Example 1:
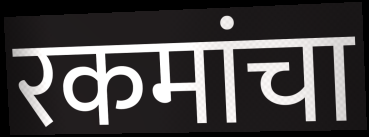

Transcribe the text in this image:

रकमांचा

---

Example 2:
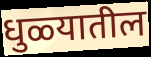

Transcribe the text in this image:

धुळ्यातील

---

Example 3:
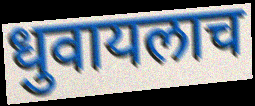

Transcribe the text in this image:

धुवायलाच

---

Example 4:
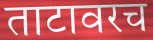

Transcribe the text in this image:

ताटावरच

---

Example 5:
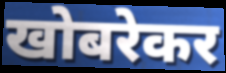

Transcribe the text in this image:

खोबरेकर